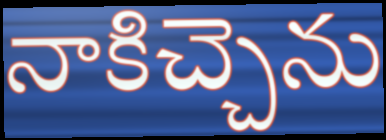
నాకిచ్చెను